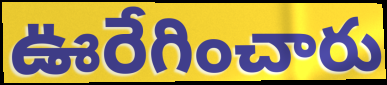
ఊరేగించారు